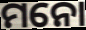
ମନୋ